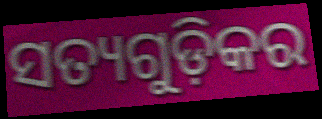
ସତ୍ୟଗୁଡ଼ିକର